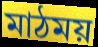
মাঠময়